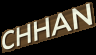
CHHAN